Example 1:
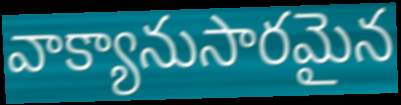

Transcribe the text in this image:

వాక్యానుసారమైన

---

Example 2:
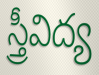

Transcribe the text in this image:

స్త్రీవిద్య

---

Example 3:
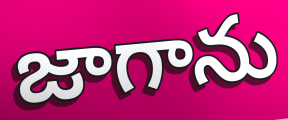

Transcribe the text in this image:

జాగాను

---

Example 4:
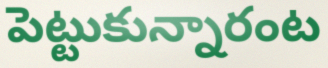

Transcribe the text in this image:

పెట్టుకున్నారంట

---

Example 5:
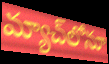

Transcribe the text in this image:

మ్యాచ్‌లోనూ